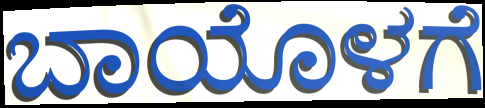
ಬಾಯೊಳಗೆ